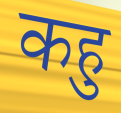
कहु